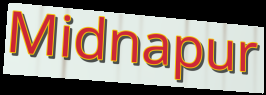
Midnapur